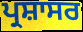
ਪ੍ਰਸ਼ਾਸਰ